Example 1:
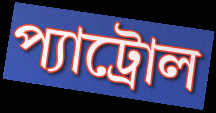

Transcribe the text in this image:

প্যাট্রোল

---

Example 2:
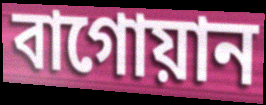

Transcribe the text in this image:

বাগোয়ান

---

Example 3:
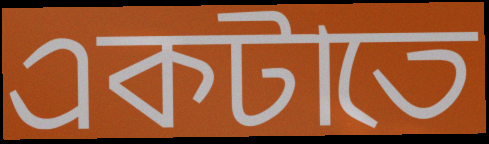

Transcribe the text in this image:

একটাতে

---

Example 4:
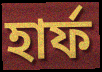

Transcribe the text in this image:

হার্ফ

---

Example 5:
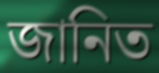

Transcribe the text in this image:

জানিত